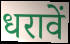
धरावें